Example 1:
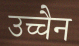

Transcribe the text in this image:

उच्चैन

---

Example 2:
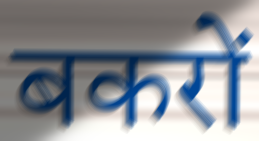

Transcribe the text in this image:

बकरों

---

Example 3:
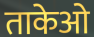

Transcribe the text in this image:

ताकेओ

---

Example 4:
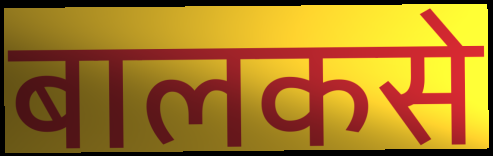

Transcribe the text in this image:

बालकसे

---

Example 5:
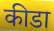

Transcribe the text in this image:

कीडा